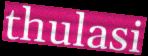
thulasi